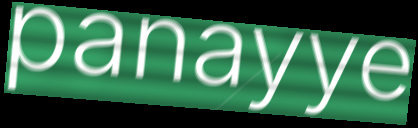
panayye